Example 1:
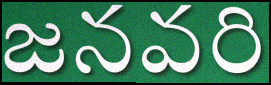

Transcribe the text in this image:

జనవరి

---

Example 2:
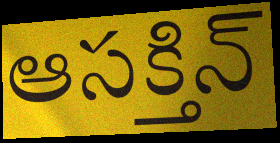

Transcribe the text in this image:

ఆసక్తిన్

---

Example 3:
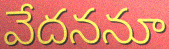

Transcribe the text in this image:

వేదననూ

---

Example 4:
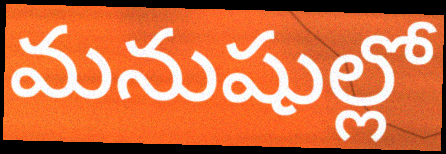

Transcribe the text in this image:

మనుషుల్లో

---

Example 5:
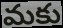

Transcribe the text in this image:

మకు